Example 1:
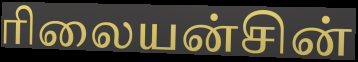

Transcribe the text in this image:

ரிலையன்சின்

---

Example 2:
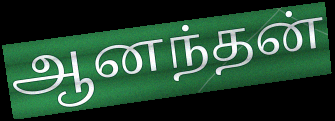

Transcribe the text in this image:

ஆனந்தன்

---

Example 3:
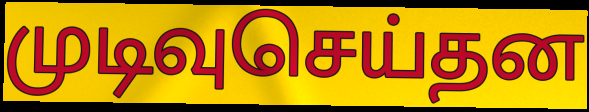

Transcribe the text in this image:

முடிவுசெய்தன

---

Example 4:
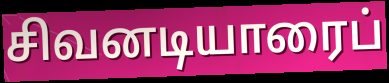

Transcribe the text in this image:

சிவனடியாரைப்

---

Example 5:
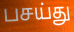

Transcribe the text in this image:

பசய்து